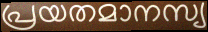
പ്രയതമാനസ്യ